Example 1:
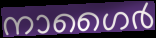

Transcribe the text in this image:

നാഗൈർ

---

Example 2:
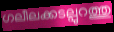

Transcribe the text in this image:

ഗലീലക്കടല്പുറത്തു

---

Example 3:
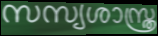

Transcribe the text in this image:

സസ്യശാസ്ത്ര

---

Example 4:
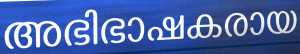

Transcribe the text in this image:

അഭിഭാഷകരായ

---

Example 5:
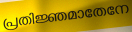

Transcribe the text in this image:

പ്രതിജ്ഞമാതേനേ